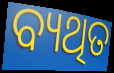
ବ୍ୟଥିତ